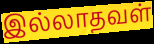
இல்லாதவள்